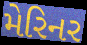
મેરિનર